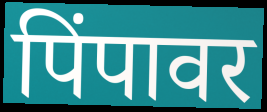
पिंपावर